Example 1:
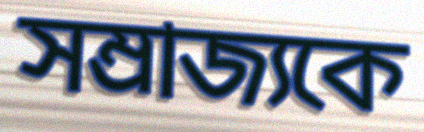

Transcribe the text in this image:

সম্রাজ্যকে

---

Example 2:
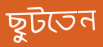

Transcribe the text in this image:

ছুটতেন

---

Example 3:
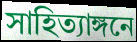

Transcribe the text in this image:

সাহিত্যাঙ্গনে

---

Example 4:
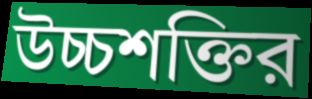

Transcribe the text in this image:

উচ্চশক্তির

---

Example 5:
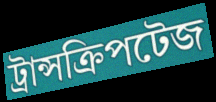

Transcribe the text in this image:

ট্রান্সক্রিপটেজ